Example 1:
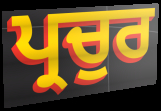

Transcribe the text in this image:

ਪ੍ਰਚੁਰ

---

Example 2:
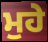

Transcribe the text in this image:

ਮੁਹੇ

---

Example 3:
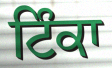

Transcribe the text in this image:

ਟਿੰਕਾ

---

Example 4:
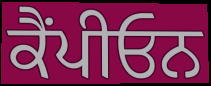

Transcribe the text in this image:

ਕੈਂਪੀਓਨ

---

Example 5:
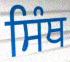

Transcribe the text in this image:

ਸਿੰਥ